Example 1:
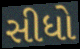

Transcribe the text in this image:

સીધો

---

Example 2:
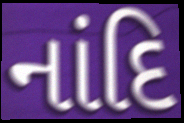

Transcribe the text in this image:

નાંદિ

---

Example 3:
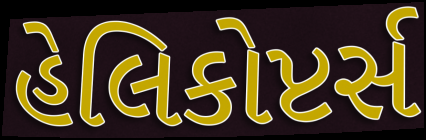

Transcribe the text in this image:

હેલિકોપ્ટર્સ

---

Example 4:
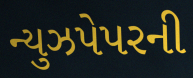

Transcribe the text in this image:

ન્યુઝપેપરની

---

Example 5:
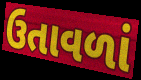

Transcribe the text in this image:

ઉતાવળાં